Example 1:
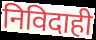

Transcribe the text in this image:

निविदाही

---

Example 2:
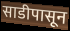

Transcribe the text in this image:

साडीपासून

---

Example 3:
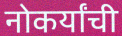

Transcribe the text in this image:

नोकर्यांची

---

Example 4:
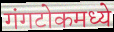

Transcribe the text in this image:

गंगटोकमध्ये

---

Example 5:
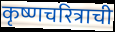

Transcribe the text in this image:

कृष्णचरित्राची